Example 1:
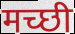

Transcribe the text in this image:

मच्छी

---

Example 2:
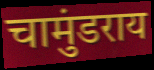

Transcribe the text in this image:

चामुंडराय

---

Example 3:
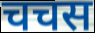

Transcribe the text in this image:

चचस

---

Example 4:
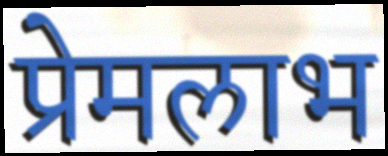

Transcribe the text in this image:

प्रेमलाभ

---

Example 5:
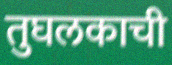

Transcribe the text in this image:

तुघलकाची